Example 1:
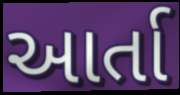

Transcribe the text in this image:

આર્તા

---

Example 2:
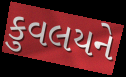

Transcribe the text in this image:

કુવલયને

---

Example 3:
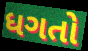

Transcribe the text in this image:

ધગતો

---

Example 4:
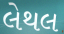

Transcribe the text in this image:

લેથલ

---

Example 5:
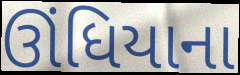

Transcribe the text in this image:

ઊંધિયાના